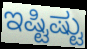
ಇಷ್ಟಿಷ್ಟು